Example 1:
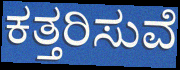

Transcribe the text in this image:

ಕತ್ತರಿಸುವೆ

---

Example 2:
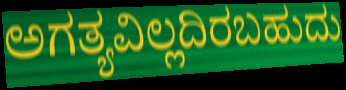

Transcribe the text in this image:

ಅಗತ್ಯವಿಲ್ಲದಿರಬಹುದು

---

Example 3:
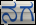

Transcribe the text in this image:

ನಗ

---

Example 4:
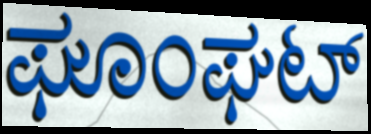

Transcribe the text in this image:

ಘೂಂಘಟ್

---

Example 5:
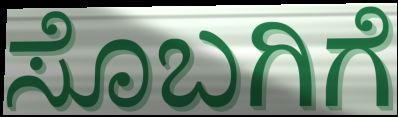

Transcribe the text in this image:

ಸೊಬಗಿಗೆ